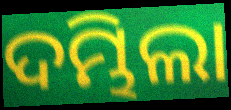
ଦମ୍ଭିଲା